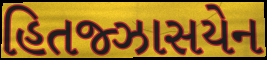
હિતજ્ઝાસયેન